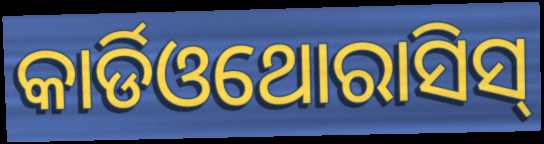
କାର୍ଡିଓଥୋରାସିସ୍